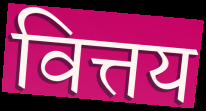
वित्तय